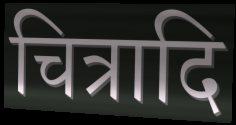
चित्रादि